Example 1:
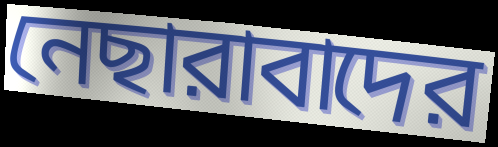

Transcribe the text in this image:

নেছারাবাদের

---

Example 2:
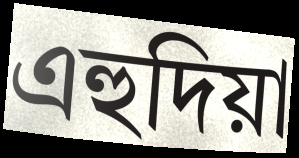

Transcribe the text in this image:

এহুদিয়া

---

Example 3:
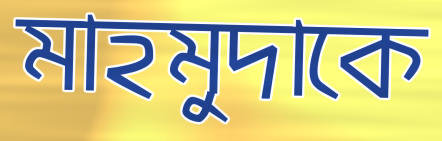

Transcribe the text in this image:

মাহমুদাকে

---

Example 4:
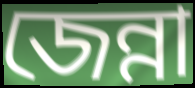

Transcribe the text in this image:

জেন্না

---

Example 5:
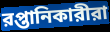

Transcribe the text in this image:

রপ্তানিকারীরা